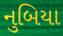
નુબિયા